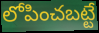
లోపించబట్టే